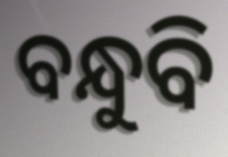
ବନ୍ଧୁବି